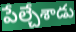
పేల్చేశాడు